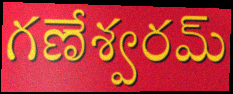
గణేశ్వరమ్